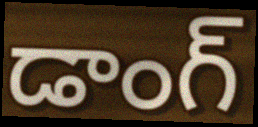
డాంగ్